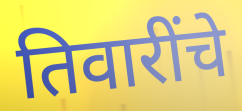
तिवारींचे